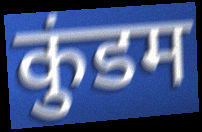
कुंडम